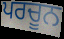
ਪਰਚੂਨ